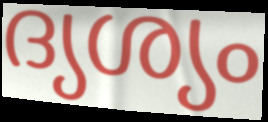
ദ്യശ്യം